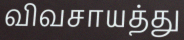
விவசாயத்து